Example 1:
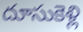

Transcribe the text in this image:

దూసుకెళ్లి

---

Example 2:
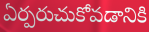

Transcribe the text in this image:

ఏర్పరుచుకోవడానికి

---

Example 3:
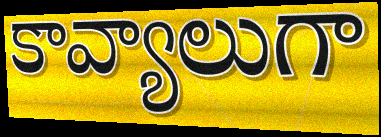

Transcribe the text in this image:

కావ్యాలుగా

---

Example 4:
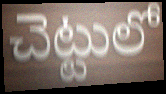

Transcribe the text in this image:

చెట్టులో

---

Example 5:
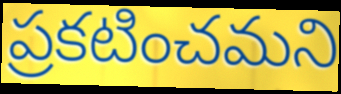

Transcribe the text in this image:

ప్రకటించమని